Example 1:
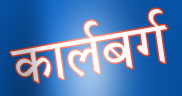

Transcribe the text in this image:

कार्लबर्ग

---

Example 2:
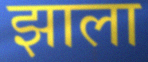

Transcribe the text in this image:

झाला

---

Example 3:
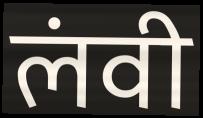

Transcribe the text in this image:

लंवी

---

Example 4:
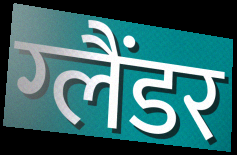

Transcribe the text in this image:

ग्लैंडर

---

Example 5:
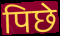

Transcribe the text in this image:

पिछे